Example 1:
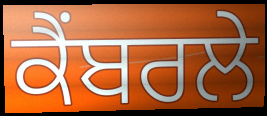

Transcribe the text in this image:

ਕੈਂਬਰਲੇ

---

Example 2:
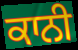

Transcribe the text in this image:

ਕਾਨੀ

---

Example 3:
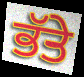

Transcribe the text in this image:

ਭੱਤੇ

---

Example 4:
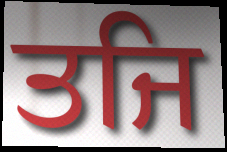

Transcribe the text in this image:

ਤਜਿ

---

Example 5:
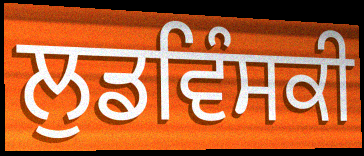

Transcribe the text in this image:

ਲੁਡਵਿੰਸਕੀ